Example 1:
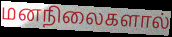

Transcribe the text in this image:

மனநிலைகளால்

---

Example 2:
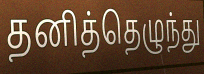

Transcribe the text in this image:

தனித்தெழுந்து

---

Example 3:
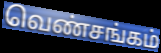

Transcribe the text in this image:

வெண்சங்கம்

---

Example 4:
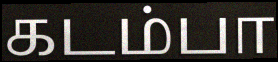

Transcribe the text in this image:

கடம்பா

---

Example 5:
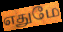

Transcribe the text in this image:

எதுமே